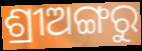
ଶ୍ରୀଅଙ୍ଗରୁ